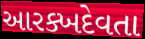
આરક્ખદેવતા